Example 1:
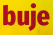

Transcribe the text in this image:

buje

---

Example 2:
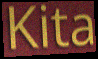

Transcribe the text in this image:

Kita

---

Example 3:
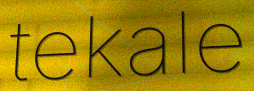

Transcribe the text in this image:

tekale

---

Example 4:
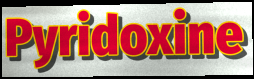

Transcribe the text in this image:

Pyridoxine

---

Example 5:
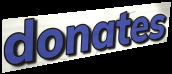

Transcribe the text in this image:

donates